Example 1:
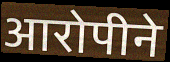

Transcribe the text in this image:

आरोपीने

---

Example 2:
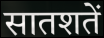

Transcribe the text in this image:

सातशतें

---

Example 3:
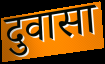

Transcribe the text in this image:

दुवासा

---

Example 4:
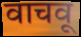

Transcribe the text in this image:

वाचवू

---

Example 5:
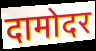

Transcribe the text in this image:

दामोदर